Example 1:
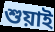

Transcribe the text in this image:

শুয়াই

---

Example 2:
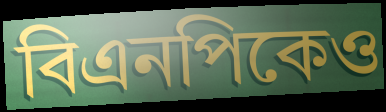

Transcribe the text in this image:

বিএনপিকেও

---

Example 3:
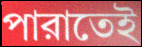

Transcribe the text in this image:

পারাতেই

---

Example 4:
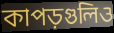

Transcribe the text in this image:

কাপড়গুলিও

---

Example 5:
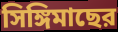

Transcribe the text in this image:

সিঙ্গিমাছের